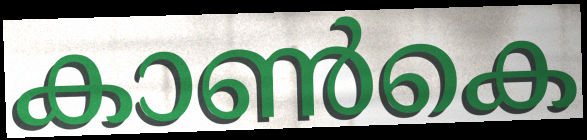
കാൺകെ